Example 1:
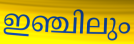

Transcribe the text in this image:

ഇഞ്ചിലും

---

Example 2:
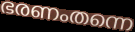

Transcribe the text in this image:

ഭരണംതന്നെ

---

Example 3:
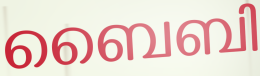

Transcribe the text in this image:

ബൈബി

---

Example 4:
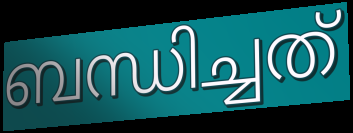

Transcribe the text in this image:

ബന്ധിച്ചത്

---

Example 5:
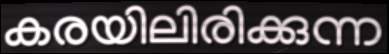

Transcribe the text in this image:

കരയിലിരിക്കുന്ന